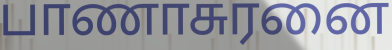
பாணாசுரனை